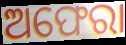
ଅଫେରା